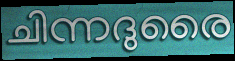
ചിന്നദുരൈ